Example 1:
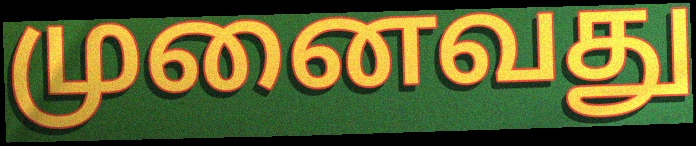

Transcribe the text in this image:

முனைவது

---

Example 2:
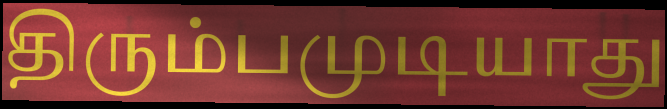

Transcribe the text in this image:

திரும்பமுடியாது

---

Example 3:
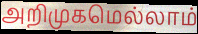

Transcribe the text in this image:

அறிமுகமெல்லாம்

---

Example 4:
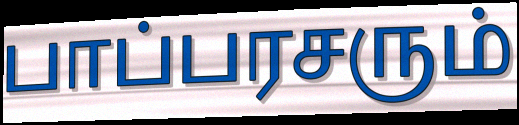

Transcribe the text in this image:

பாப்பரசரும்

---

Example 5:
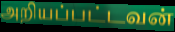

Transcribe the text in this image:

அறியப்பட்டவன்